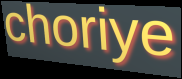
choriye